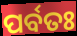
ପର୍ବତଃ